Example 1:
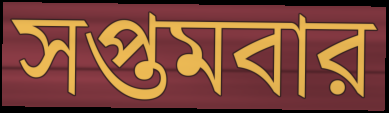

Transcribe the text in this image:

সপ্তমবার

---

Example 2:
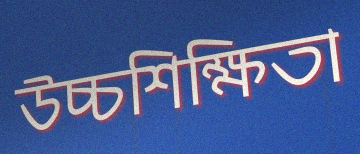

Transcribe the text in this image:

উচ্চশিক্ষিতা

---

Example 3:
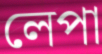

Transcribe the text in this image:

লেপা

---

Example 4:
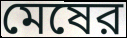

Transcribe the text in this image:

মেষের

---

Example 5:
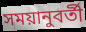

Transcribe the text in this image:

সময়ানুবর্তী